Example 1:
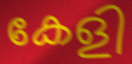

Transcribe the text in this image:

കേളി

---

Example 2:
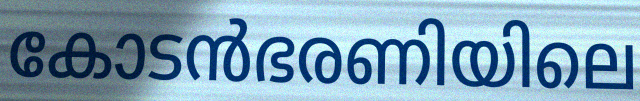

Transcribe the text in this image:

കോടൻഭരണിയിലെ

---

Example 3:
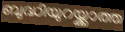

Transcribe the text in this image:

ബുദ്ധിയുറയ്ക്കാത്ത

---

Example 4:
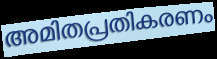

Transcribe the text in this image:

അമിതപ്രതികരണം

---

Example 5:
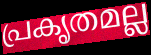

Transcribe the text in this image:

പ്രകൃതമല്ല